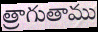
త్రాగుతాము